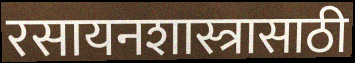
रसायनशास्त्रासाठी